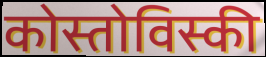
कोस्तोविस्की